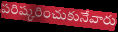
పరిష్కరించుకునేవారు